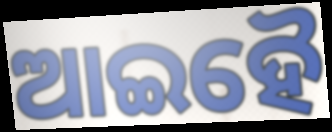
ଆଇହୈ